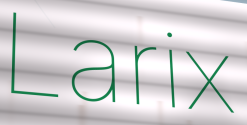
Larix